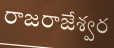
రాజరాజేశ్వర